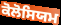
ਕੋਲੋਸਿਯਮ